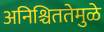
अनिश्चिततेमुळे